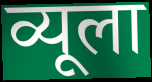
व्यूला